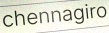
chennagiro